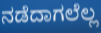
ನಡೆದಾಗಲೆಲ್ಲ